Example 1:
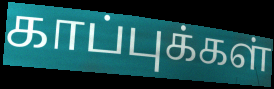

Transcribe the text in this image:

காப்புக்கள்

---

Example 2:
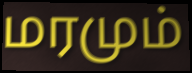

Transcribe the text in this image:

மரமும்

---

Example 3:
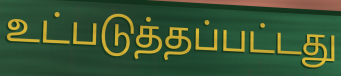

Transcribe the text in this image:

உட்படுத்தப்பட்டது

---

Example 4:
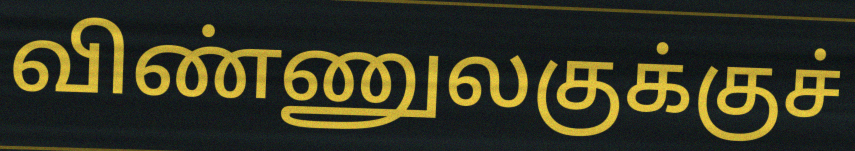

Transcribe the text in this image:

விண்ணுலகுக்குச்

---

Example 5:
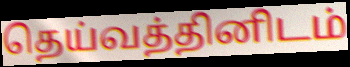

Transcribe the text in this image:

தெய்வத்தினிடம்